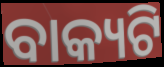
ବାକ୍ୟଟି